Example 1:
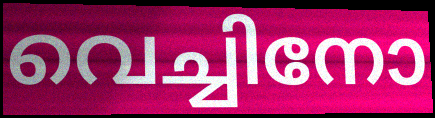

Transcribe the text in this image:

വെച്ചിനോ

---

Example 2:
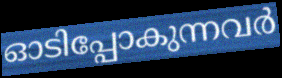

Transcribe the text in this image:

ഓടിപ്പോകുന്നവർ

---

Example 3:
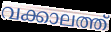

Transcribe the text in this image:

വക്കാലത്ത്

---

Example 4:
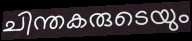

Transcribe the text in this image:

ചിന്തകരുടെയും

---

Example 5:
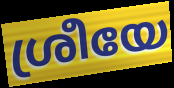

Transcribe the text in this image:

ശ്രീയേ